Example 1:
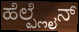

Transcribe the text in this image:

ಹೆಲ್ಪ್ಲೈನ್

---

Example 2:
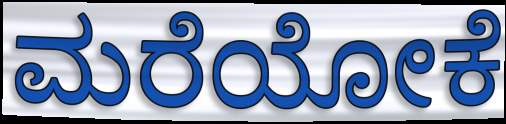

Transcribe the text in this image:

ಮರೆಯೋಕೆ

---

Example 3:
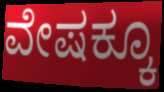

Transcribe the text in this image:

ವೇಷಕ್ಕೂ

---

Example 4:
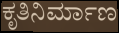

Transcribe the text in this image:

ಕೃತಿನಿರ್ಮಾಣ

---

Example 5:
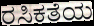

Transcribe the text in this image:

ರಸಿಕತೆಯ